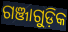
ଗଞ୍ଜାଗୁଡ଼ିକ